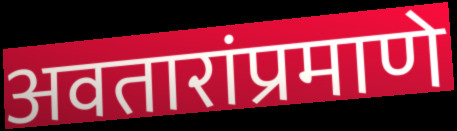
अवतारांप्रमाणे